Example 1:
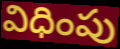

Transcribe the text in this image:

విధింపు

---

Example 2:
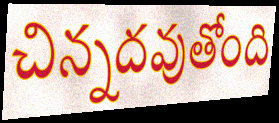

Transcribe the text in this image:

చిన్నదవుతోంది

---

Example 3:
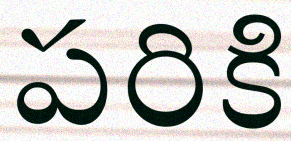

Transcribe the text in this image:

పరికి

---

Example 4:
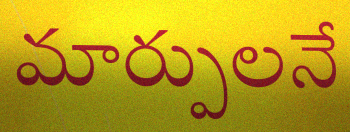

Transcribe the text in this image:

మార్పులనే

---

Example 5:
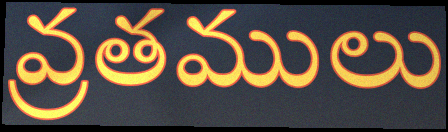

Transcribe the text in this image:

వ్రతములు